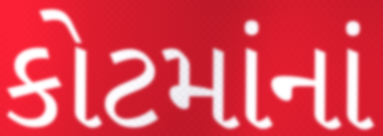
કોટમાંનાં